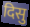
दिसु